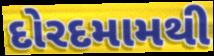
દોરદમામથી